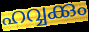
ഹവ്വക്കും